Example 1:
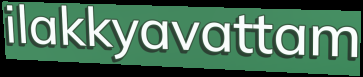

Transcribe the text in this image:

ilakkyavattam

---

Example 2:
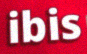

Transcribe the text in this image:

ibis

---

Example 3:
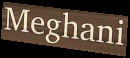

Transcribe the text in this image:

Meghani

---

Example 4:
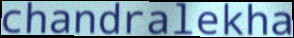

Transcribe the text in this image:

chandralekha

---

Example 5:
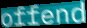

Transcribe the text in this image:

offend